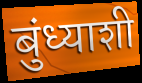
बुंध्याशी